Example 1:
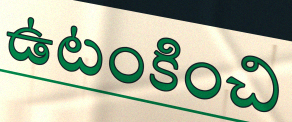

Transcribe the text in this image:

ఉటంకించి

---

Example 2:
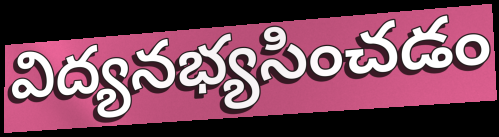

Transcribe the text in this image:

విద్యనభ్యసించడం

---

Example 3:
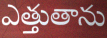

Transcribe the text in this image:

ఎత్తుతాను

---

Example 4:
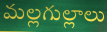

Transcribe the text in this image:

మల్లగుల్లాలు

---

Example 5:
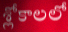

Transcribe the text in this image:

శ్లోకాలలో